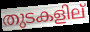
തുടകളില്